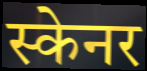
स्‍केनर